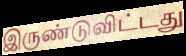
இருண்டுவிட்டது